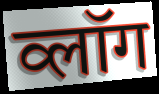
व्लॉग